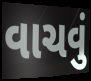
વાચવું